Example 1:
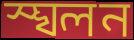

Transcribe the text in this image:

স্খলন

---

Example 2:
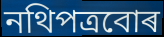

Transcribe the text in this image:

নথিপত্ৰবোৰ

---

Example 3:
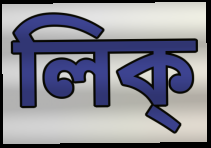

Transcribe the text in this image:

লিক্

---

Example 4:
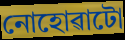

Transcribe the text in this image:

নোহোৱাটো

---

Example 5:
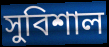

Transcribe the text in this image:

সুবিশাল